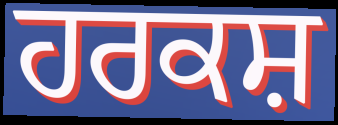
ਹਰਕਸ਼